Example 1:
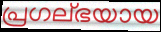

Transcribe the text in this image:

പ്രഗല്ഭയായ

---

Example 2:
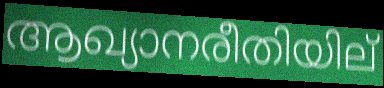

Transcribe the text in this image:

ആഖ്യാനരീതിയില്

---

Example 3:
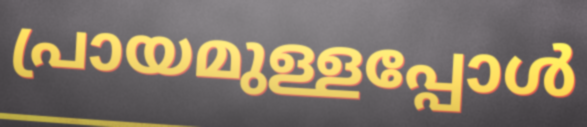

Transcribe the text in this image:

പ്രായമുള്ളപ്പോൾ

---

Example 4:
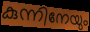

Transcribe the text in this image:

കുന്നിനേയും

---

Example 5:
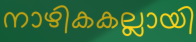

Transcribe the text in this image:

നാഴികകല്ലായി